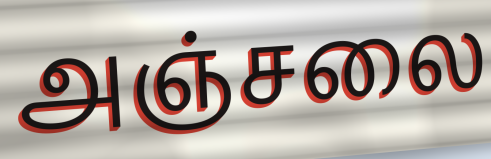
அஞ்சலை